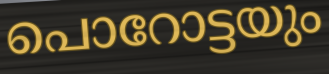
പൊറോട്ടയും